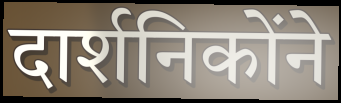
दार्शनिकोंने